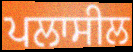
ਪਲਾਸੀਲ